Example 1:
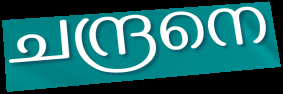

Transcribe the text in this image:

ചന്ദ്രനെ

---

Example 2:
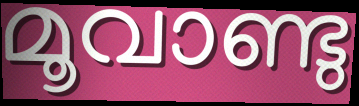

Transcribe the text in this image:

മൂവാണ്ടു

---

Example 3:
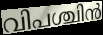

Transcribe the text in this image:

വിപശ്ചിൻ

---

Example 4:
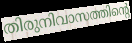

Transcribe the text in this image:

തിരുനിവാസത്തിന്റെ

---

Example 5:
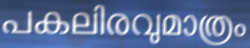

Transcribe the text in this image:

പകലിരവുമാത്രം